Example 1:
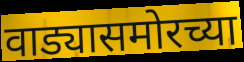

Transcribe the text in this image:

वाड्यासमोरच्या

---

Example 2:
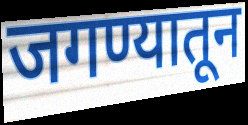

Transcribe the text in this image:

जगण्यातून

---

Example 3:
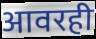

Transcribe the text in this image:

आवरही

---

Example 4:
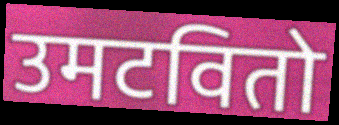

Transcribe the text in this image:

उमटवितो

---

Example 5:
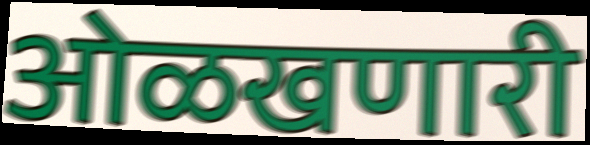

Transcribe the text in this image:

ओळखणारी